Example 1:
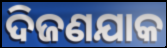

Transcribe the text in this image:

ଦିଜଣଯାକ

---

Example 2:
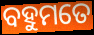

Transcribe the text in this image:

ବହୁମତେ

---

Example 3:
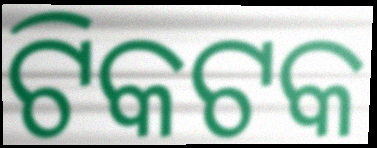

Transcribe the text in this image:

ଟିକଟକ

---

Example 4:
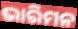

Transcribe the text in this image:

ଭାରିମନ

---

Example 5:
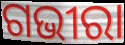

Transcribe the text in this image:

ଗଭୀରା